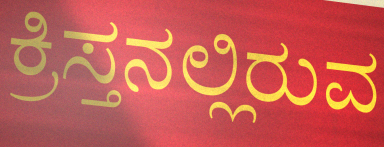
ಕ್ರಿಸ್ತನಲ್ಲಿರುವ